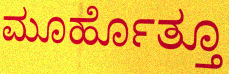
ಮೂರ್ಹೊತ್ತೂ